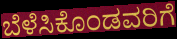
ಬೆಳೆಸಿಕೊಂಡವರಿಗೆ